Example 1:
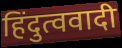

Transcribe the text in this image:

हिंदुत्ववादी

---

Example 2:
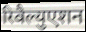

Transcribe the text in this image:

रिवैल्युएशन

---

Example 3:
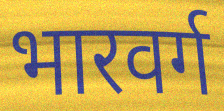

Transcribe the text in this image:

भारवर्ग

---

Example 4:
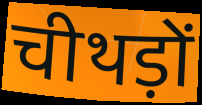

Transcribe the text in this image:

चीथड़ों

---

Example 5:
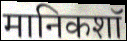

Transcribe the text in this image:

मानिकशॉ